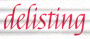
delisting